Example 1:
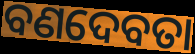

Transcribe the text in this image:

ବଣଦେବତା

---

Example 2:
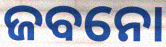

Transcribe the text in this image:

ଜବନୋ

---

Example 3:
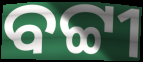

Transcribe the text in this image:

ବଟ୍ଟୀ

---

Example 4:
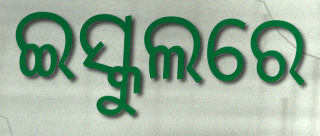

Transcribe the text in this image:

ଇସ୍କୁଲରେ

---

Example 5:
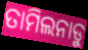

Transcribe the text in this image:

ତାମିଲନାଡୁ